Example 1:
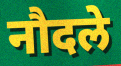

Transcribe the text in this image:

नौदले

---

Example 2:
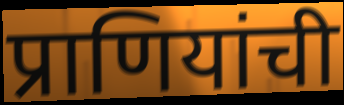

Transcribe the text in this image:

प्राणियांची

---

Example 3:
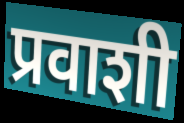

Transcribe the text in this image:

प्रवाशी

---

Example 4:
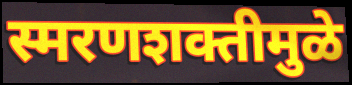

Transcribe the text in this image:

स्मरणशक्तीमुळे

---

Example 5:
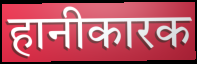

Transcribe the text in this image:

हानीकारक